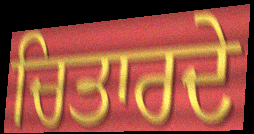
ਚਿਤਾਰਦੇ